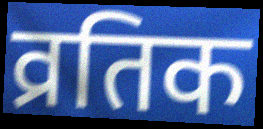
व्रतिक